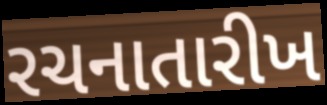
રચનાતારીખ